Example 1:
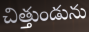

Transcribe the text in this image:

చిత్తుండును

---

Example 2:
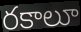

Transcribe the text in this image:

రకాలూ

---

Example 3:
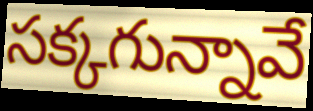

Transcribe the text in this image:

సక్కగున్నావే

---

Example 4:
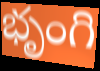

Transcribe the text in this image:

భృంగి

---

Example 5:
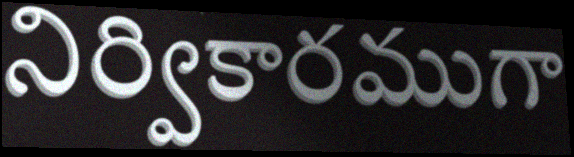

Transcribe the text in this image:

నిర్వికారముగా